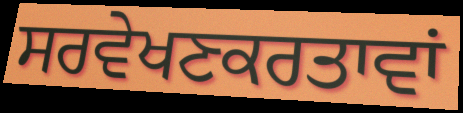
ਸਰਵੇਖਣਕਰਤਾਵਾਂ